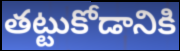
తట్టుకోడానికి